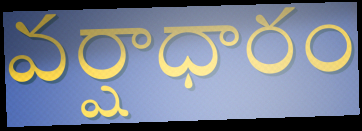
వర్షాధారం